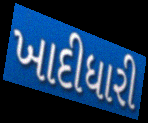
ખાદીધારી